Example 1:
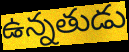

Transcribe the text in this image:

ఉన్నతుడు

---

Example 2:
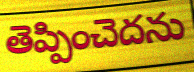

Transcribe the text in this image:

తెప్పించెదను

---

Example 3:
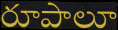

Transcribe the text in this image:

రూపాలూ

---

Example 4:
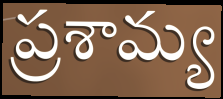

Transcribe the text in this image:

ప్రశామ్య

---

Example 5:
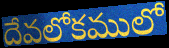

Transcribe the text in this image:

దేవలోకములో